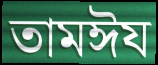
তামঈয